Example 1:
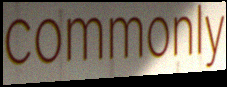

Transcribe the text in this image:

commonly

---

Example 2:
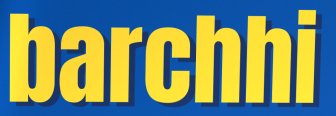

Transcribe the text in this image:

barchhi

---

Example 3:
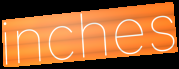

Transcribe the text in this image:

inches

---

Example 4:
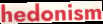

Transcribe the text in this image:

hedonism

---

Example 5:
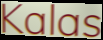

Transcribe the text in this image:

Kalas